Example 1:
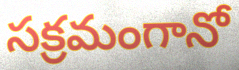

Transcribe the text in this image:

సక్రమంగానో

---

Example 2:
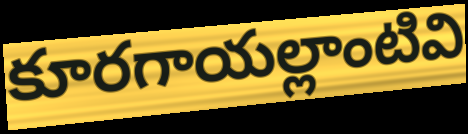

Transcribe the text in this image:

కూరగాయల్లాంటివి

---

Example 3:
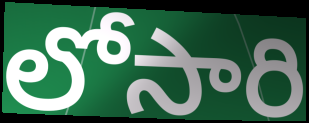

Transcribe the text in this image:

లోసారి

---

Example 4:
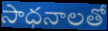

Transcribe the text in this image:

సాధనాలతో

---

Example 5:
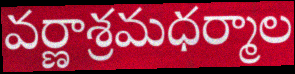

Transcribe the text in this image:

వర్ణాశ్రమధర్మాల